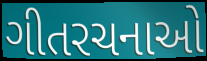
ગીતરચનાઓ